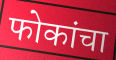
फोकांचा